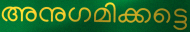
അനുഗമിക്കട്ടെ